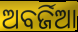
ଅବର୍ଜିଆ